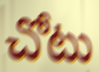
చోటు